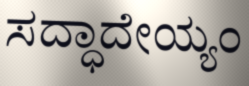
ಸದ್ಧಾದೇಯ್ಯಂ